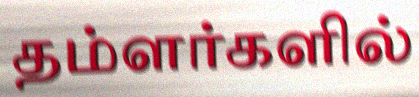
தம்ளர்களில்